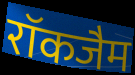
रॉकजैम